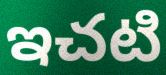
ఇచటి